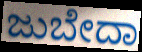
ಜುಬೇದಾ